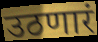
उठणारं